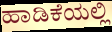
ಹಾಡಿಕೆಯಲ್ಲಿ